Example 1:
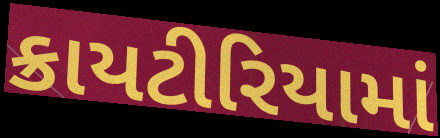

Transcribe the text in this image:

ક્રાયટીરિયામાં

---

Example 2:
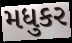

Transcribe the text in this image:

મધુકર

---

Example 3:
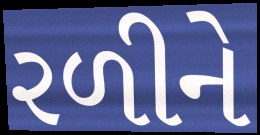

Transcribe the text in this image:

રળીને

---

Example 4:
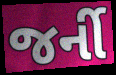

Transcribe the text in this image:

જર્ની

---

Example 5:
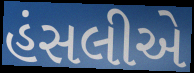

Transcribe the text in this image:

હંસલીએ